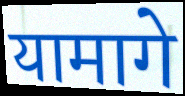
यामागे